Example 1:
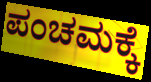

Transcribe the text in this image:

ಪಂಚಮಕ್ಕೆ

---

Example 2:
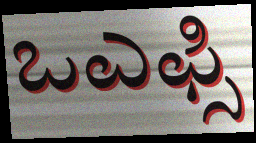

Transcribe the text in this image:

ಒಎಫ್ಸಿ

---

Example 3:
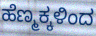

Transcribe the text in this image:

ಹೆಣ್ಮಕ್ಕಳಿಂದ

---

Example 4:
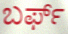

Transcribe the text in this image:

ಬರ್ಫ್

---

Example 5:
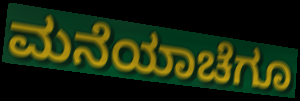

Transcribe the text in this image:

ಮನೆಯಾಚೆಗೂ